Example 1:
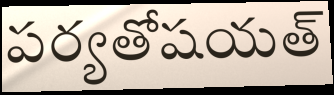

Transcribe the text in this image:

పర్యతోషయత్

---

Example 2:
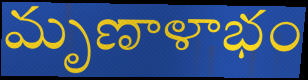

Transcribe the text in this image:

మృణాళాభం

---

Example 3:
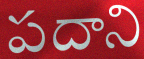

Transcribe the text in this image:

పదాని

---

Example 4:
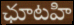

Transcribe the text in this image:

ఛూటహి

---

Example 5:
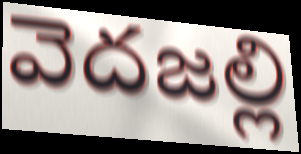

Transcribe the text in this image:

వెదజల్లి